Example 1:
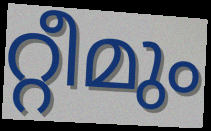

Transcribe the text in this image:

റ്റീമും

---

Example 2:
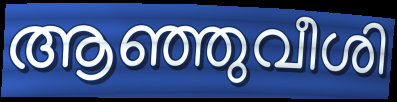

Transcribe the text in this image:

ആഞ്ഞുവീശി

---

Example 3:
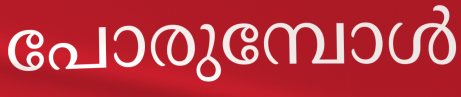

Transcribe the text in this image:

പോരുമ്പോൾ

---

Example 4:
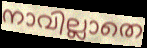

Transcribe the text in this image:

നാവില്ലാതെ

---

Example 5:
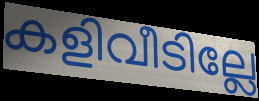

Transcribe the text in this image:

കളിവീടില്ലേ